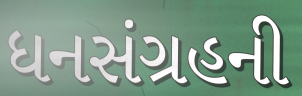
ધનસંગ્રહની